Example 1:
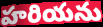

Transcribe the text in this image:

హరియను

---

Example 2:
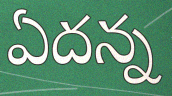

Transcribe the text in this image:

ఏదన్న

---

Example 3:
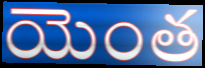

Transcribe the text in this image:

యెంత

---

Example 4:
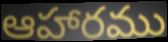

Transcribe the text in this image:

ఆహారము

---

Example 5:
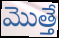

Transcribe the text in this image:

మొత్తే